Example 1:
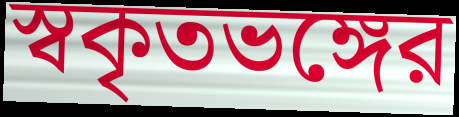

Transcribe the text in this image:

স্বকৃতভঙ্গের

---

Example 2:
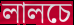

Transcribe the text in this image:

লালচে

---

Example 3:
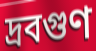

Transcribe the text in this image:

দ্রবগুণ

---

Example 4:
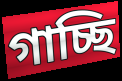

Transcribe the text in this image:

গাচ্ছি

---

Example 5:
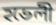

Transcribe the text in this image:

হভেলী